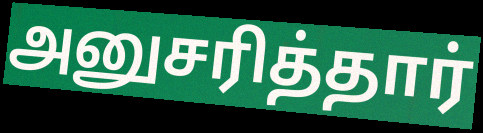
அனுசரித்தார்